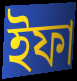
ইফা